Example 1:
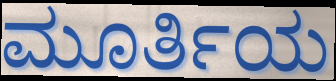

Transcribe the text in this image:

ಮೂರ್ತಿಯ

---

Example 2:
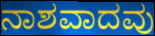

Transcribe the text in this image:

ನಾಶವಾದವು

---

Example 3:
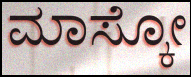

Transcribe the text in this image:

ಮಾಸ್ಕೋ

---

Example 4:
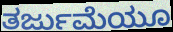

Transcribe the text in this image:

ತರ್ಜುಮೆಯೂ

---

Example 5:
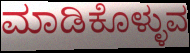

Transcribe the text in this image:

ಮಾಡಿಕೊಳ್ಳುವ